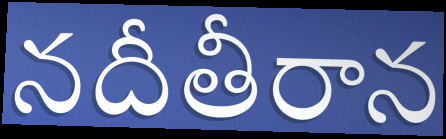
నదీతీరాన